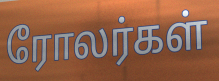
ரோலர்கள்